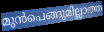
മുൻപെങ്ങുമില്ലാത്ത